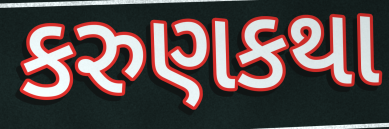
કરુણકથા